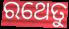
ରଥେତୁ